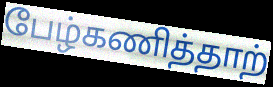
பேழ்கணித்தாற்